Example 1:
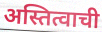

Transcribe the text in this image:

अस्तित्वाची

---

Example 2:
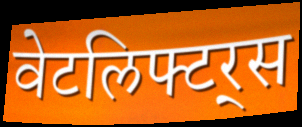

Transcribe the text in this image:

वेटलिफ्टर्स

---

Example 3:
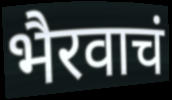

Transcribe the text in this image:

भैरवाचं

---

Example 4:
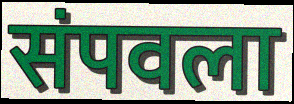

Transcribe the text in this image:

संपवला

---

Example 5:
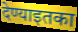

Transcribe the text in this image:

देण्याइतका